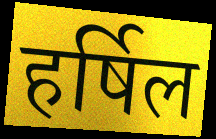
हर्षिल